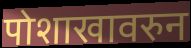
पोशाखावरुन